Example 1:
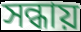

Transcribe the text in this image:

সন্ধায়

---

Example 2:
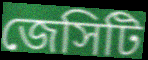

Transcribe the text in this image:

জেসিটি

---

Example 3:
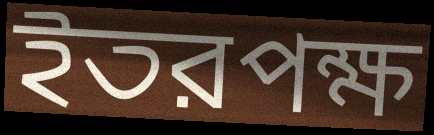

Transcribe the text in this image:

ইতরপক্ষ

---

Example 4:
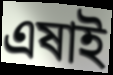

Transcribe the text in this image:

এষাই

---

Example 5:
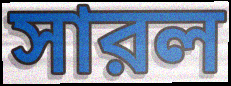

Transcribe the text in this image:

সারল